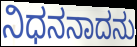
ನಿಧನನಾದನು